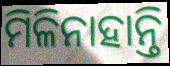
ମିଳିନାହାନ୍ତି